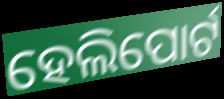
ହେଲିପୋର୍ଟ